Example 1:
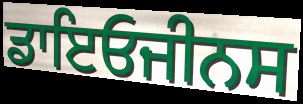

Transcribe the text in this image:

ਡਾਇਓਜੀਨਸ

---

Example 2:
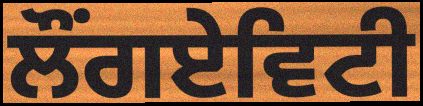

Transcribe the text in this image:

ਲੌਂਗਏਵਿਟੀ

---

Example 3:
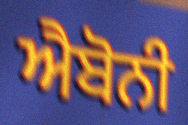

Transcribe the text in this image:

ਐਬੋਨੀ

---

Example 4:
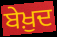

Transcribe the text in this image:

ਬੇਖ਼ੁਦ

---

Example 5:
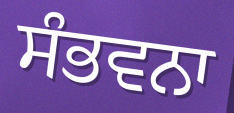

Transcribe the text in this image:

ਸੰਭਵਨਾ